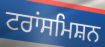
ਟਰਾਂਸਮਿਸ਼ਨ